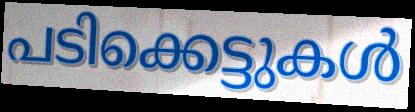
പടിക്കെട്ടുകൾ